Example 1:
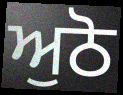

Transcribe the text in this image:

ਅੁਠੋ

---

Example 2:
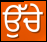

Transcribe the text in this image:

ਉੱਚੇ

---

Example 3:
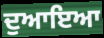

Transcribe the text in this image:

ਦੁਆਇਆ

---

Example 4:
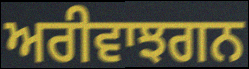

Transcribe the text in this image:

ਅਰੀਵਾਝਗਨ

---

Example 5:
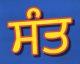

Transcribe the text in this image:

ਸੰਤ